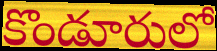
కొండూరులో